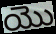
యొ